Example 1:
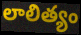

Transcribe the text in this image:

లాలిత్యం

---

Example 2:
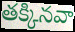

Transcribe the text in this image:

తక్కినవా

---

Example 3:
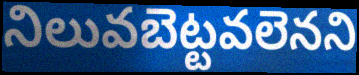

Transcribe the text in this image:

నిలువబెట్టవలెనని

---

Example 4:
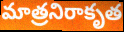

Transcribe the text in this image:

మాత్రనిరాకృత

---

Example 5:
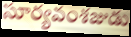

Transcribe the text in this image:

సూర్యవంశజుడు